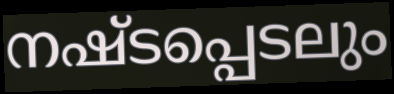
നഷ്ടപ്പെടലും